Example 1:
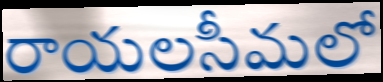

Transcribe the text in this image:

రాయలసీమలో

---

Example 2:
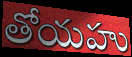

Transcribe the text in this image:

తోయహు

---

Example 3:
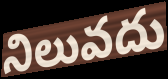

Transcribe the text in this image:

నిలువదు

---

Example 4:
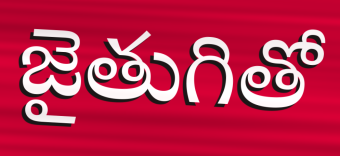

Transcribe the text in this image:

జైతుగితో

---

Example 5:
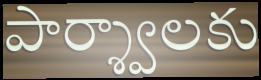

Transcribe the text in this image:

పార్శ్వాలకు